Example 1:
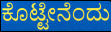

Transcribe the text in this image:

ಕೊಟ್ಟೇನೆಂದು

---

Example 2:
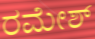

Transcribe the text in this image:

ರಮೇಶ್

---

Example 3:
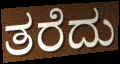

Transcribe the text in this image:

ತರೆದು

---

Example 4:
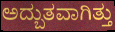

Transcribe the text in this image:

ಅದ್ಬುತವಾಗಿತ್ತು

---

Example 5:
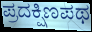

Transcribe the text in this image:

ಪ್ರದಕ್ಷಿಣಪಥ